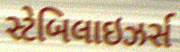
સ્ટેબિલાઇઝર્સ